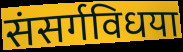
संसर्गविधया